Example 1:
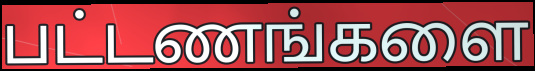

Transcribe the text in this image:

பட்டணங்களை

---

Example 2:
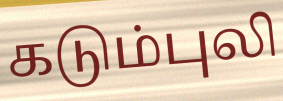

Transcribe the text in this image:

கடும்புலி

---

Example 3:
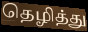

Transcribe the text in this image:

தெழித்து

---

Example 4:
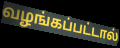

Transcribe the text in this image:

வழங்கப்பட்டால்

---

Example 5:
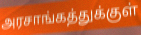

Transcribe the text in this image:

அரசாங்கத்துக்குள்